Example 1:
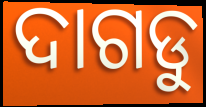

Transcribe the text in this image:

ଦାଗଡୁ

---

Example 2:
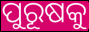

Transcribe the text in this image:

ପୁରୂଷକୁ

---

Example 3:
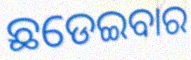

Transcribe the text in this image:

ଛଡେଇବାର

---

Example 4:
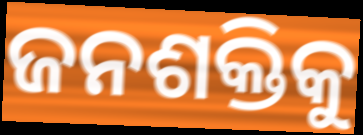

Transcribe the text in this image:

ଜନଶକ୍ତିକୁ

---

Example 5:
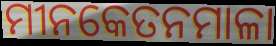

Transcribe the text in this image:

ମୀନକେତନମାଳା